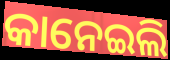
କାନେଇଲି